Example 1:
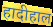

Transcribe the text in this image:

हादीहाल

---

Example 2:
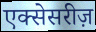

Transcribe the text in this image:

एक्सेसरीज़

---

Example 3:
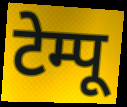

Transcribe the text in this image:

टेम्पू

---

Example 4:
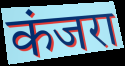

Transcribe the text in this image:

कंजरा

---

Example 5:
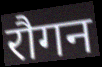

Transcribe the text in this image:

रौगन